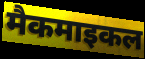
मैकमाइकल